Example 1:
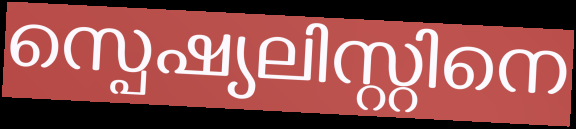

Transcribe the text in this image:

സ്പെഷ്യലിസ്റ്റിനെ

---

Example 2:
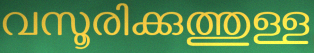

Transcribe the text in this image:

വസൂരിക്കുത്തുള്ള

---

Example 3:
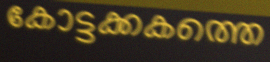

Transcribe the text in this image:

കോട്ടക്കകത്തെ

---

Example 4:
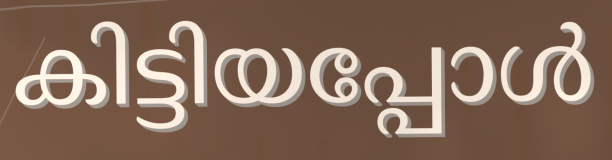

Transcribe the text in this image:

കിട്ടിയപ്പോൾ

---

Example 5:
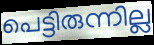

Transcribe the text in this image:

പെട്ടിരുന്നില്ല